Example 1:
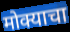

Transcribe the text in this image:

मोक्याचा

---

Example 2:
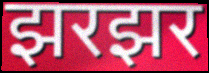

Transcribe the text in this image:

झरझर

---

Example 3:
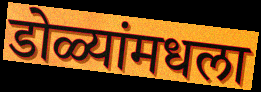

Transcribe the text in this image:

डोळ्यांमधला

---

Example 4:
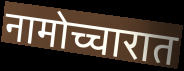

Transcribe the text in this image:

नामोच्चारात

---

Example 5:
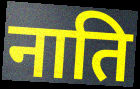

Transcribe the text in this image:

नाति